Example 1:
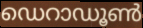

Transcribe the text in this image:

ഡെറാഡൂൺ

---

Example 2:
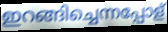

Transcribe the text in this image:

ഇറങ്ങിച്ചെന്നപ്പോള്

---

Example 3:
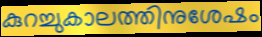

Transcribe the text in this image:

കുറച്ചുകാലത്തിനുശേഷം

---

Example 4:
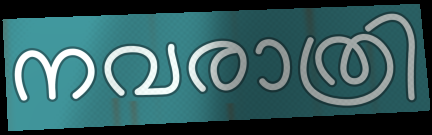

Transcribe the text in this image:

നവരാത്രി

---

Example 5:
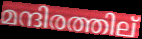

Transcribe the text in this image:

മന്ദിരത്തില്